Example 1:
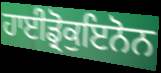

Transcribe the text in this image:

ਹਾਈਡ੍ਰੋਕੁਇਨੋਨ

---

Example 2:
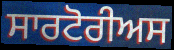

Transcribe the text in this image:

ਸਾਰਟੋਰੀਅਸ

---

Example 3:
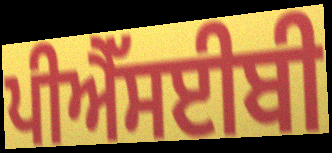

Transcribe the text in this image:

ਪੀਐੱਸਈਬੀ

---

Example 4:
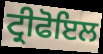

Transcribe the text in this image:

ਟ੍ਰੀਫੋਇਲ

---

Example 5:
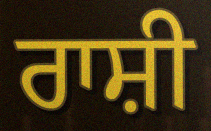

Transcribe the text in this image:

ਰਾਸ਼ੀ